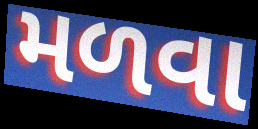
મળવા